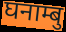
घनाम्बु